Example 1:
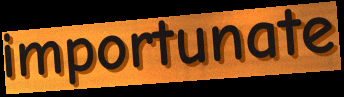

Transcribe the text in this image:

importunate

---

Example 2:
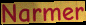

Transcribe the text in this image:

Narmer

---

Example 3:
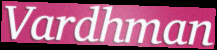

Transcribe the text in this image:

Vardhman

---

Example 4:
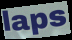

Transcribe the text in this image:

laps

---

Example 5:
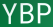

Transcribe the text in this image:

YBP